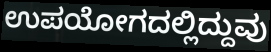
ಉಪಯೋಗದಲ್ಲಿದ್ದುವು